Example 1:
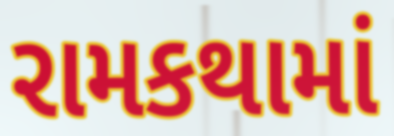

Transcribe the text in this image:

રામકથામાં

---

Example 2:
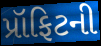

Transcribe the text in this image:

પ્રૉફિટની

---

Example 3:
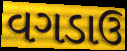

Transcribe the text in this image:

વગડાઉ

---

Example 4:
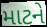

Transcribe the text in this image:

માટને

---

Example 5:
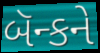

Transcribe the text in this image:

બૅન્કને